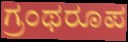
ಗ್ರಂಥರೂಪ